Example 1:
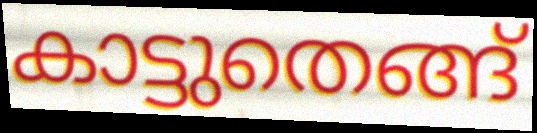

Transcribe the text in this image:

കാട്ടുതെങ്ങ്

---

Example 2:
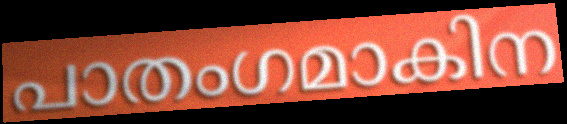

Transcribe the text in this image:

പാതംഗമാകിന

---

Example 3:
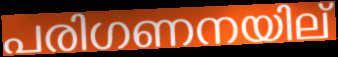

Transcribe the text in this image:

പരിഗണനയില്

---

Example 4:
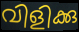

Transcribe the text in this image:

വിളിക്കു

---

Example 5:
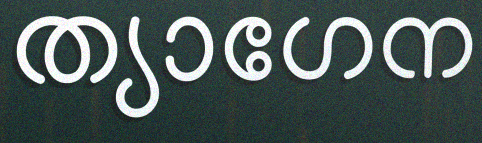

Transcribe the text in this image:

ത്യാഗേന